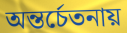
অন্তর্চেতনায়